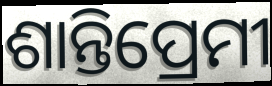
ଶାନ୍ତିପ୍ରେମୀ